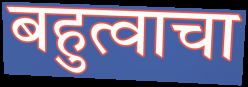
बहुत्वाचा